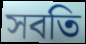
সবতি